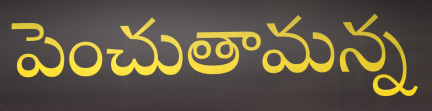
పెంచుతామన్న